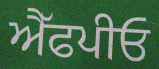
ਐੱਫਪੀਓ